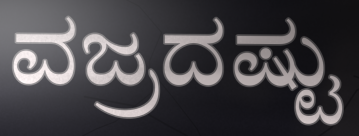
ವಜ್ರದಷ್ಟು